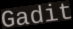
Gadit